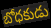
బోధకుడు